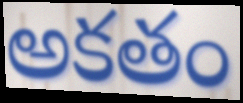
అకతం